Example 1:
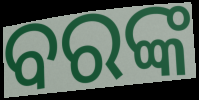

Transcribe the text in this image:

ବରଙ୍କ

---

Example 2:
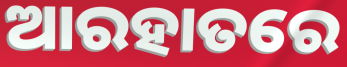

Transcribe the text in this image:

ଆରହାତରେ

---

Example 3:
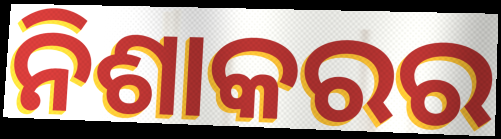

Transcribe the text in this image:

ନିଶାକରର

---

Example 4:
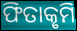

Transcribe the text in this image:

ଫିତାକୃମି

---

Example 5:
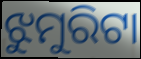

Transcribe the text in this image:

ଝୁମୁରିଟା